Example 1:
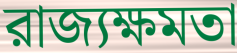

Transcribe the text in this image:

রাজ্যক্ষমতা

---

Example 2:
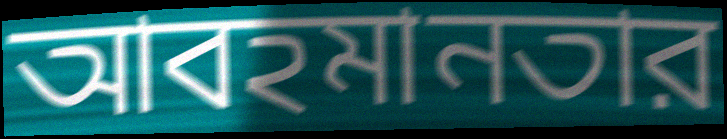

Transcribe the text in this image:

আবহমানতার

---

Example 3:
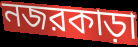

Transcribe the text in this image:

নজরকাড়া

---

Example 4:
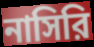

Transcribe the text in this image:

নাসিরি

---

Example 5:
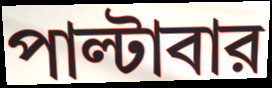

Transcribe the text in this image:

পাল্টাবার